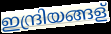
ഇന്ദ്രിയങ്ങള്